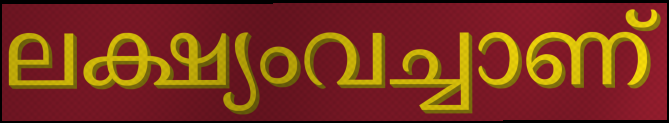
ലക്ഷ്യംവച്ചാണ്